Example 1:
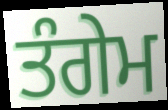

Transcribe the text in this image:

ਤੰਗੇਮ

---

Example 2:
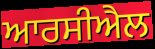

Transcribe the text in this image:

ਆਰਸੀਐਲ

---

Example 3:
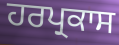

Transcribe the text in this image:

ਹਰਪ੍ਰਕਾਸ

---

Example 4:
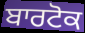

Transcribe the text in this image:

ਬਾਰਟੋਕ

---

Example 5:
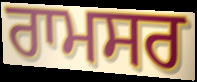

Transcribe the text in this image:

ਰਾਮਸਰ